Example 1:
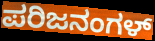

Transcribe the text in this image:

ಪರಿಜನಂಗಳ್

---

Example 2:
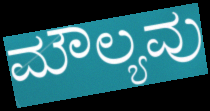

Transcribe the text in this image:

ಮೌಲ್ಯವು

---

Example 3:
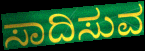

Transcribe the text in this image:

ಸಾದಿಸುವ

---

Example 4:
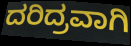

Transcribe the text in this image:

ದರಿದ್ರವಾಗಿ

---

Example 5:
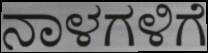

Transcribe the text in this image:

ನಾಳಗಳಿಗೆ